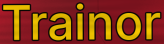
Trainor